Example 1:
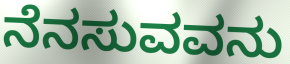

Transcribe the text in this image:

ನೆನಸುವವನು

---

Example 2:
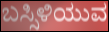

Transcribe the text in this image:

ಬಸ್ಸಿಳಿಯುವ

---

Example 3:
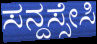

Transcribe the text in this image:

ಸನ್ದಸ್ಸೇಸಿ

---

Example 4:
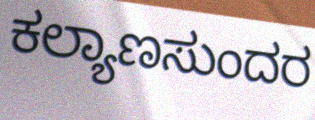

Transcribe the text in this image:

ಕಲ್ಯಾಣಸುಂದರ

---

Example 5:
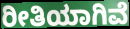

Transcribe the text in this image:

ರೀತಿಯಾಗಿವೆ